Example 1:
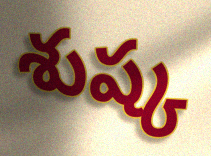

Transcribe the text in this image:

శుష్క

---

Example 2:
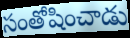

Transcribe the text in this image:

సంతోషించాడు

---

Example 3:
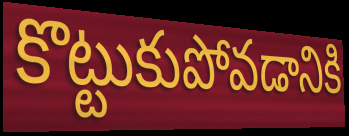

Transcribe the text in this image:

కొట్టుకుపోవడానికి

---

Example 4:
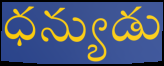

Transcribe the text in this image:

ధన్యుడు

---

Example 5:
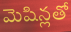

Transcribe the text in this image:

మెషిన్లతో